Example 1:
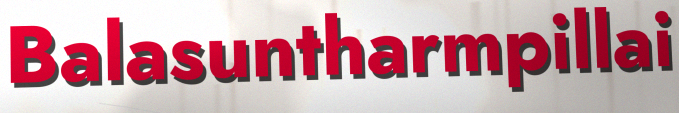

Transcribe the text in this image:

Balasuntharmpillai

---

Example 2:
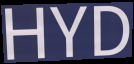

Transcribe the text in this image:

HYD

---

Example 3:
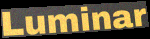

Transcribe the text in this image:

Luminar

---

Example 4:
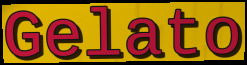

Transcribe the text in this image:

Gelato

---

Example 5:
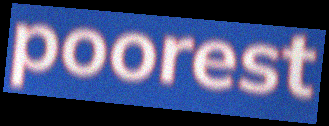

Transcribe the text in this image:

poorest